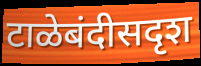
टाळेबंदीसदृश